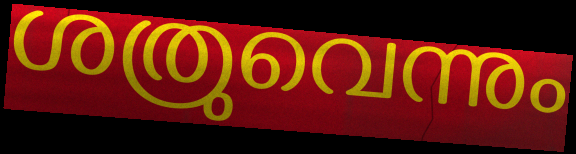
ശത്രുവെന്നും